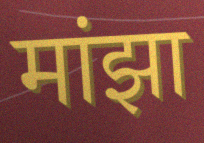
मांझा